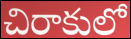
చిరాకులో